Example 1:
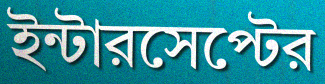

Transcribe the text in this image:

ইন্টারসেপ্টের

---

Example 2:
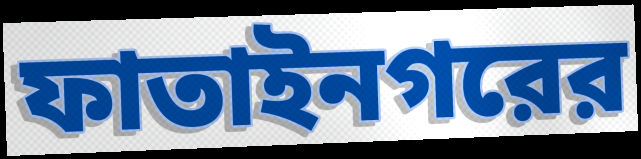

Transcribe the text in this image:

ফাতাইনগরের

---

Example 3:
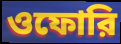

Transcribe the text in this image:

ওফোরি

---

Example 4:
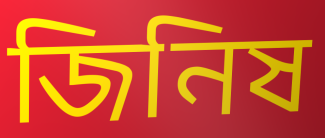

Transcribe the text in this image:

জিনিষ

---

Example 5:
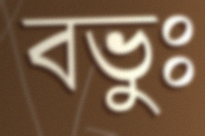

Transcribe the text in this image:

বভুঃ